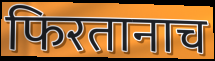
फिरतानाच